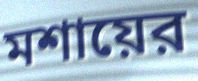
মশায়ের